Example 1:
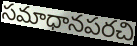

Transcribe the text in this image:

సమాధానపరచి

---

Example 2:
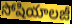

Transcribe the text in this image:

సోషియాలజీ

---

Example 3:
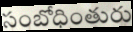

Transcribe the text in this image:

సంబోధింతురు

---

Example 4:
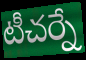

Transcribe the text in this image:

టీచర్నే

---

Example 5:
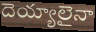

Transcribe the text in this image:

దెయ్యాలైనా